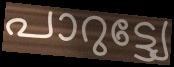
പാറുട്ട്യേ